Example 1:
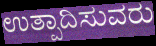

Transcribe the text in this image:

ಉತ್ಪಾದಿಸುವರು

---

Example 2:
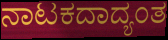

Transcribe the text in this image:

ನಾಟಕದಾದ್ಯಂತ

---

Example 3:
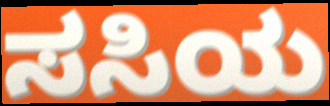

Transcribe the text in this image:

ಸಸಿಯ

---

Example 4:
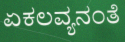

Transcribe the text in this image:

ಏಕಲವ್ಯನಂತೆ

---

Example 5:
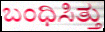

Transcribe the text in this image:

ಬಂಧಿಸಿತ್ತು